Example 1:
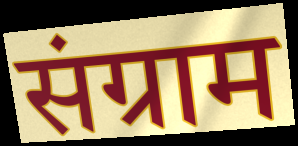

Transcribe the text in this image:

संग्राम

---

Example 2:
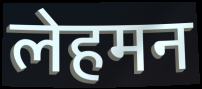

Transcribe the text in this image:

लेहमन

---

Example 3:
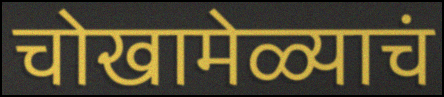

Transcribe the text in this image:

चोखामेळ्याचं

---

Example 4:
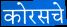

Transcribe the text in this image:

कोरसचे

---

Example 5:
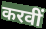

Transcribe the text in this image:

करवीं